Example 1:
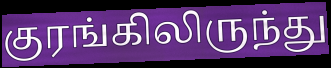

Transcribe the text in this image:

குரங்கிலிருந்து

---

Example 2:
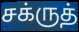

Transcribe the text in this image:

சக்ருத்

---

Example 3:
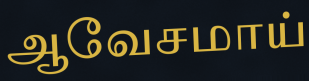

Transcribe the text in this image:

ஆவேசமாய்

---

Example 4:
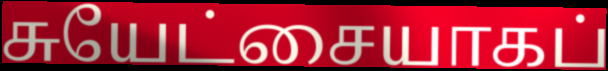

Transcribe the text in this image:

சுயேட்சையாகப்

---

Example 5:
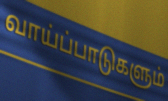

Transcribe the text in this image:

வாய்ப்பாடுகளும்